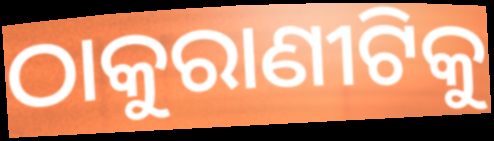
ଠାକୁରାଣୀଟିକୁ